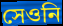
সেওনি